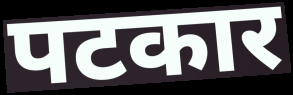
पटकार